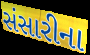
સંસારીના